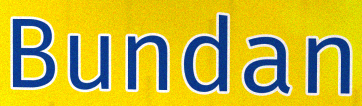
Bundan